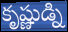
కృష్ణుడ్ని